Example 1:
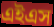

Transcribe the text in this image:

এইএস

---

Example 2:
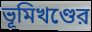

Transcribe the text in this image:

ভূমিখণ্ডের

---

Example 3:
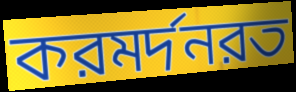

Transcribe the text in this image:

করমর্দনরত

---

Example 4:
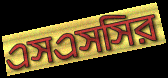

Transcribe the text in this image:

এসএসসির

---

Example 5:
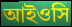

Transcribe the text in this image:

আইওসি